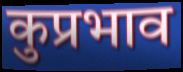
कुप्रभाव